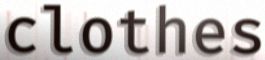
clothes